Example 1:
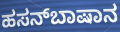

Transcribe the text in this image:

ಹಸನ್‌ಬಾಷಾನ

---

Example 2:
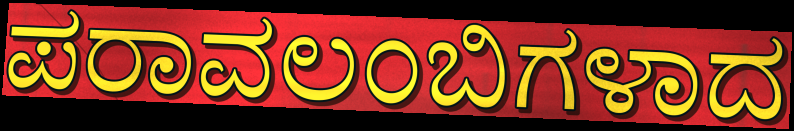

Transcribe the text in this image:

ಪರಾವಲಂಬಿಗಳಾದ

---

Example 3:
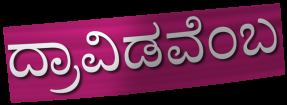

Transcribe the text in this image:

ದ್ರಾವಿಡವೆಂಬ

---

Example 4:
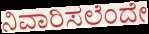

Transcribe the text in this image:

ನಿವಾರಿಸಲೆಂದೇ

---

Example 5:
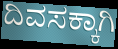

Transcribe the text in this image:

ದಿವಸಕ್ಕಾಗಿ